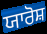
ਯਾਰੋਸ਼